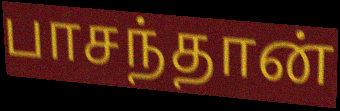
பாசந்தான்